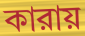
কারায়